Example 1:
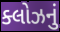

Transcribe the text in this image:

ક્લોઝનું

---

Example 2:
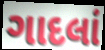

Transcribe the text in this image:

ગાદલાં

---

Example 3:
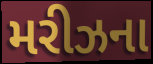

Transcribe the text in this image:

મરીઝના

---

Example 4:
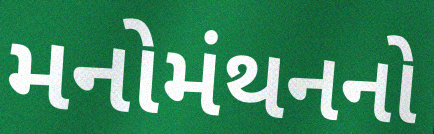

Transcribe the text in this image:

મનોમંથનનો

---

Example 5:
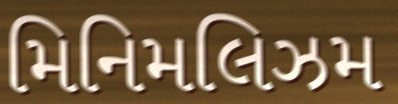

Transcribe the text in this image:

મિનિમલિઝમ